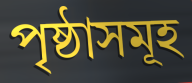
পৃষ্ঠাসমূহ